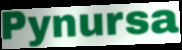
Pynursa